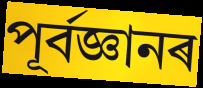
পূৰ্বজ্ঞানৰ